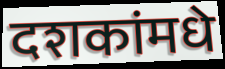
दशकांमधे